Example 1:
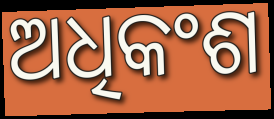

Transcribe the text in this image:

ଅଧିକଂଶ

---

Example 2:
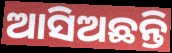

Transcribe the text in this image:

ଆସିଅଛନ୍ତି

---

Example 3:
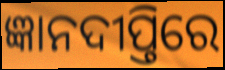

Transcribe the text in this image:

ଜ୍ଞାନଦୀପ୍ତିରେ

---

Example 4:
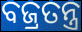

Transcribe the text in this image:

ବଜ୍ରତନ୍ତ୍ର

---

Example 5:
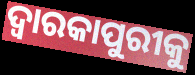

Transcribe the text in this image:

ଦ୍ୱାରକାପୁରୀକୁ